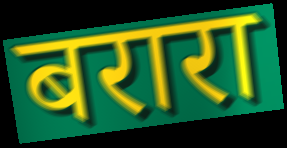
बरारा